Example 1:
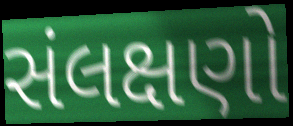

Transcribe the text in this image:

સંલક્ષણો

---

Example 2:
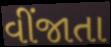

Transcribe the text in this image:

વીંજાતા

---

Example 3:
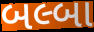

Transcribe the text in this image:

બલ્બા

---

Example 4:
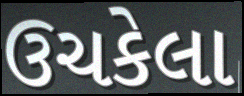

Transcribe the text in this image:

ઉચકેલા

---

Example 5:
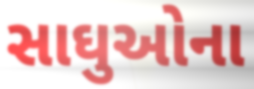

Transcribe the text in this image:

સાઘુઓના